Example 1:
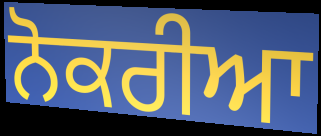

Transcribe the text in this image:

ਨੋਕਰੀਆ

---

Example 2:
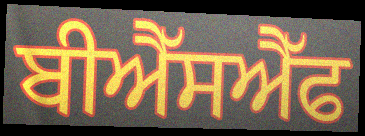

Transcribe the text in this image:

ਬੀਐੱਸਐੱਫ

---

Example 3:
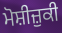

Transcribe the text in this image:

ਮੋਸ਼ੀਜ਼ੁਕੀ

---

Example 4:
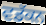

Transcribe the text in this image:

ਵਡੱਕਨ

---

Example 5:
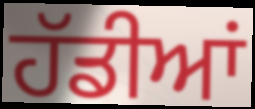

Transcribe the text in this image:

ਹੱਡੀਆਂ